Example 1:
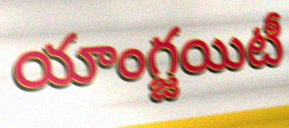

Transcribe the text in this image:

యాంగ్జయిటీ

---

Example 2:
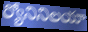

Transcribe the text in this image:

ర్యోనినిలయా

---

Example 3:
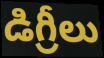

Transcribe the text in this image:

డిగ్రీలు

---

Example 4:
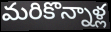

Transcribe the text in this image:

మరికొన్నాళ్ల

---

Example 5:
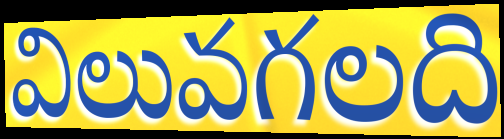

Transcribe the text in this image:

విలువగలది